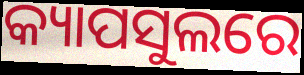
କ୍ୟାପସୁଲରେ